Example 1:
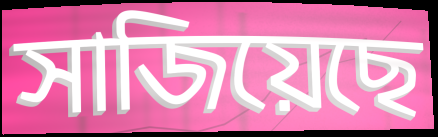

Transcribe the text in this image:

সাজিয়েছে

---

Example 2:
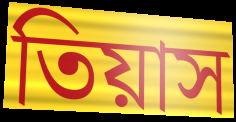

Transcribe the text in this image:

তিয়াস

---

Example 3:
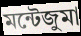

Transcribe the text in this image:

মন্টেজুমা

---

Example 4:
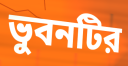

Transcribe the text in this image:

ভুবনটির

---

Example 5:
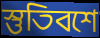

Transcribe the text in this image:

স্তুতিবশে